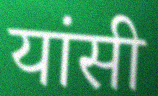
यांसी